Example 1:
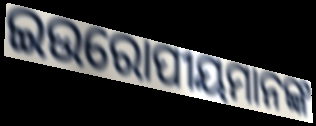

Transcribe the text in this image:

ଇଉରୋପୀୟମାନଙ୍କ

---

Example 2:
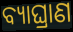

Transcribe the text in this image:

ବ୍ୟାଘ୍ରାଣ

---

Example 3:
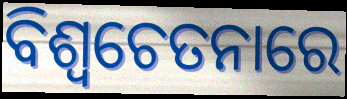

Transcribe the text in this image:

ବିଶ୍ୱଚେତନାରେ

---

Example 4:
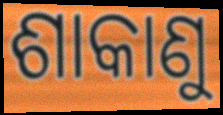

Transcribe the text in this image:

ଶାକାଣୁ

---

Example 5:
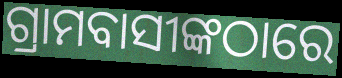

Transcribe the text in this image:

ଗ୍ରାମବାସୀଙ୍କଠାରେ